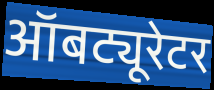
ऑबट्यूरेटर